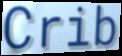
Crib